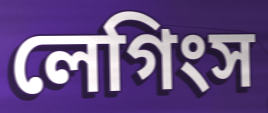
লেগিংস